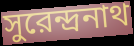
সুরেন্দ্রনাথ